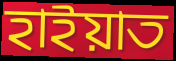
হাইয়াত